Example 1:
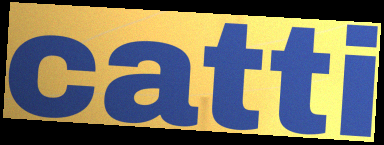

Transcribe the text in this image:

catti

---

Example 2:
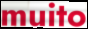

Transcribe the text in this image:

muito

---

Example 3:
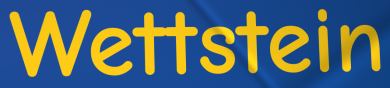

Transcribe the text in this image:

Wettstein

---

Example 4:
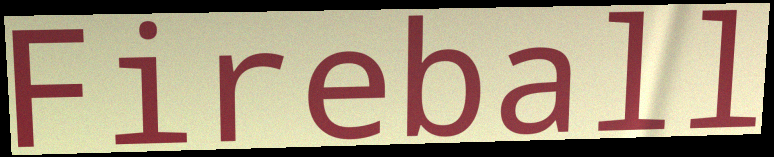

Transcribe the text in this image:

Fireball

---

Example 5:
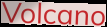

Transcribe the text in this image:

Volcano